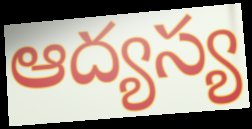
ఆద్యస్య